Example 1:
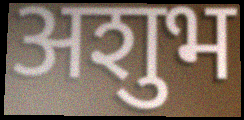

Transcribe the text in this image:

अशुभ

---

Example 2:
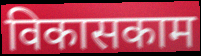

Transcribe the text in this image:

विकासकाम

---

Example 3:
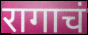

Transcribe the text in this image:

रागाचं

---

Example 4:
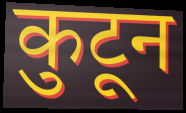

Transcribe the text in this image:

कुटून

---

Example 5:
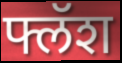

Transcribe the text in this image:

फ्लॅश